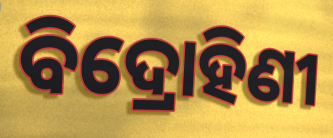
ବିଦ୍ରୋହିଣୀ